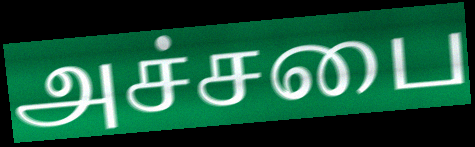
அச்சபை